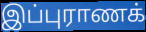
இப்புராணக்